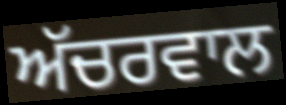
ਅੱਚਰਵਾਲ